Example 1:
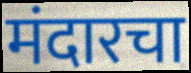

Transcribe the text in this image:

मंदारचा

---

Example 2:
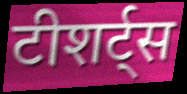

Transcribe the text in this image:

टीशर्ट्स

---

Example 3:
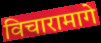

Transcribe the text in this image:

विचारामागे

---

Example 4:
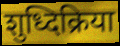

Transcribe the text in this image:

शुध्दिक्रिया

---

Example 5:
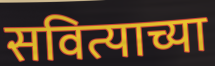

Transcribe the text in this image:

सवित्याच्या